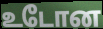
உடோன